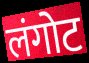
लंगोट